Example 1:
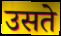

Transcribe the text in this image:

उसते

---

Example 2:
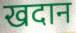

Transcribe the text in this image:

खदान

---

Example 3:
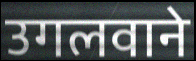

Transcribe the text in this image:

उगलवाने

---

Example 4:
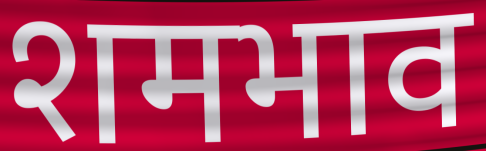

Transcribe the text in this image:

शमभाव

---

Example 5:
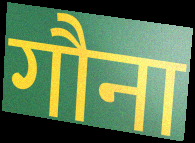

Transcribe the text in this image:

गौना